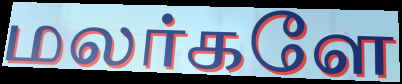
மலர்களே